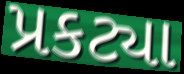
પ્રકટ્યા